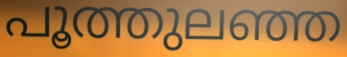
പൂത്തുലഞ്ഞ